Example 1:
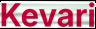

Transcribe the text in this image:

Kevari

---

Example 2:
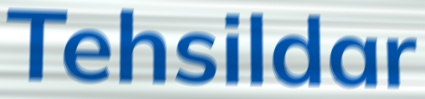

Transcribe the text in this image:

Tehsildar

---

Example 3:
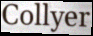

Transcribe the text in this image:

Collyer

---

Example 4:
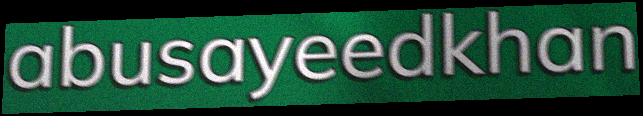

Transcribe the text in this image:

abusayeedkhan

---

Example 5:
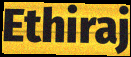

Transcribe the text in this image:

Ethiraj